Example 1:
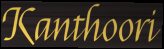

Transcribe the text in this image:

Kanthoori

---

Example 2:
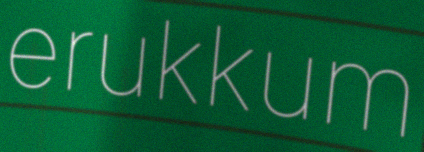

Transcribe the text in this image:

erukkum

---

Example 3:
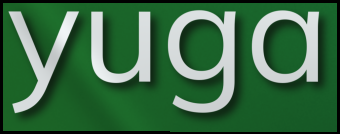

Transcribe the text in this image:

yuga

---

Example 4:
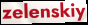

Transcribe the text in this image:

zelenskiy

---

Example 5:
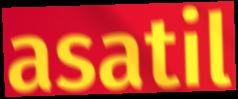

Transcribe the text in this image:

asatil